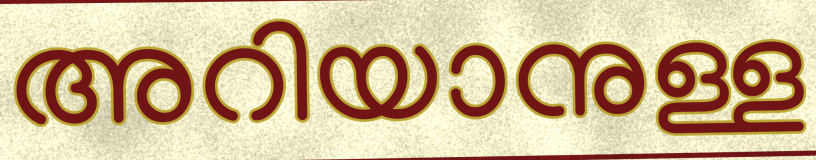
അറിയാനുള്ള